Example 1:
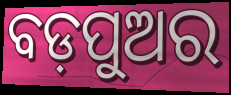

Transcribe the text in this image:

ବଡ଼ପୁଅର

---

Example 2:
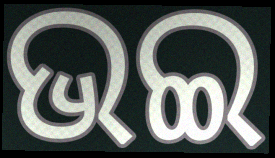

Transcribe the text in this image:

ଭଇ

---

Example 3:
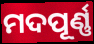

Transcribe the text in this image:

ମଦପୂର୍ଣ୍ଣ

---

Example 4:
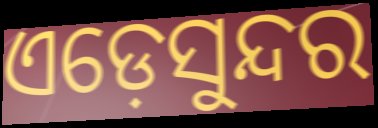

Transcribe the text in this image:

ଏଡ଼େସୁନ୍ଦର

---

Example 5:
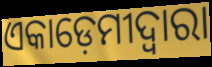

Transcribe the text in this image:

ଏକାଡ଼େମୀଦ୍ୱାରା